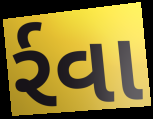
ર્રવા